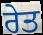
ਰੇਤ